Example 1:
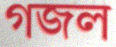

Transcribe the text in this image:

গজল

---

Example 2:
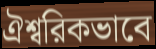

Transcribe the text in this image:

ঐশ্বরিকভাবে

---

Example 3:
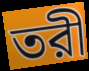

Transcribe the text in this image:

তরী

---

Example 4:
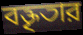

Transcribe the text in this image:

বক্তৃতার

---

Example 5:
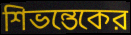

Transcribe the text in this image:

শিভন্তেকের